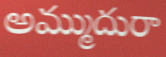
అమ్ముదురా